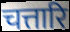
चत्तारि